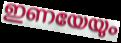
ഇണയേയും